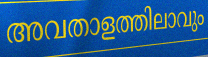
അവതാളത്തിലാവും